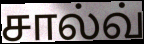
சால்வ்